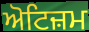
ਅੋਟਿਜ਼ਮ